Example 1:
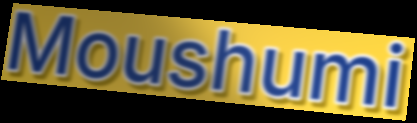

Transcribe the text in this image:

Moushumi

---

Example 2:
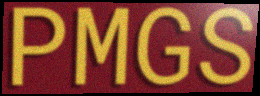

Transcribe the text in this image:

PMGS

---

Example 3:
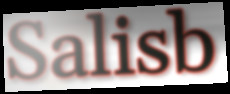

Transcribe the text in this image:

Salisb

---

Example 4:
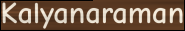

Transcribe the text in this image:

Kalyanaraman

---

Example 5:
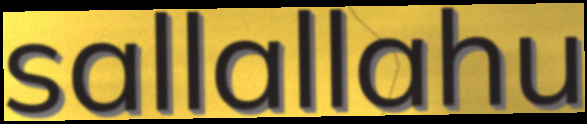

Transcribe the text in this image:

sallallahu